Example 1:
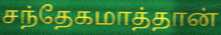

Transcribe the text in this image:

சந்தேகமாத்தான்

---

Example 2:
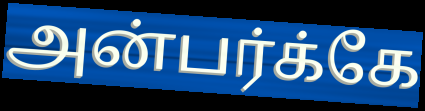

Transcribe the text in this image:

அன்பர்க்கே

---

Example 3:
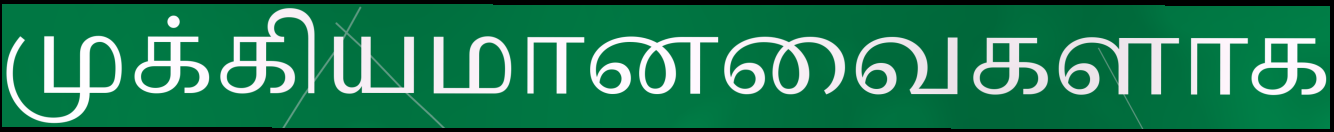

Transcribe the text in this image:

முக்கியமானவைகளாக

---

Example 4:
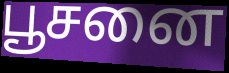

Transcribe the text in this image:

பூசனை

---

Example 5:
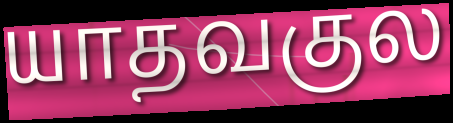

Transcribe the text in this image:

யாதவகுல